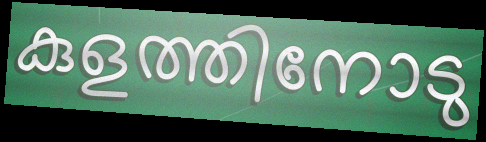
കുളത്തിനോടു